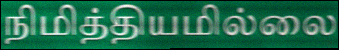
நிமித்தியமில்லை